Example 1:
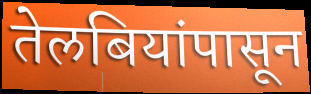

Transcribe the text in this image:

तेलबियांपासून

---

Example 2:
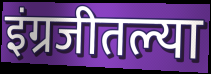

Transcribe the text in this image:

इंग्रजीतल्या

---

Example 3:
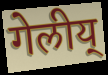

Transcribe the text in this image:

गेलीय्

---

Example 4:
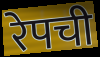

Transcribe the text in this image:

रेपची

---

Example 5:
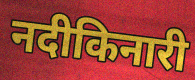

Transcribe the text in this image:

नदीकिनारी